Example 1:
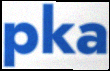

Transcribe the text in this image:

pka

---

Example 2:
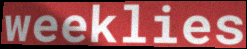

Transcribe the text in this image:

weeklies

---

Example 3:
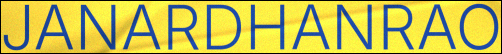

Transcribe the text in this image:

JANARDHANRAO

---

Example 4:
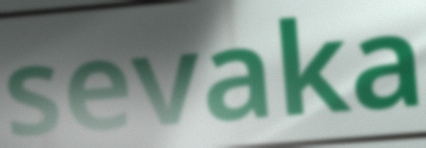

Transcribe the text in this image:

sevaka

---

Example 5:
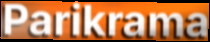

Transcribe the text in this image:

Parikrama